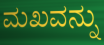
ಮಖವನ್ನು